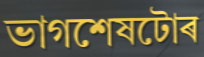
ভাগশেষটোৰ